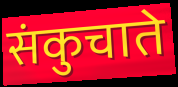
संकुचाते